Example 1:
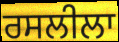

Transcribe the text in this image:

ਰਸਲੀਲਾ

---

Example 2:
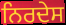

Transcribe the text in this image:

ਨਿਰਦੇਸ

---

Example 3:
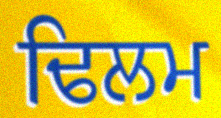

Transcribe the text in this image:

ਢਿਲਮ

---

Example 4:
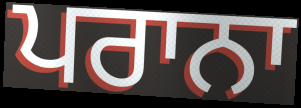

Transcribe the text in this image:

ਪਰਾਨਾ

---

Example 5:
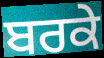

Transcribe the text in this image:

ਬਰਕੇ